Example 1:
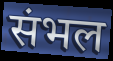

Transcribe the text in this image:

संभल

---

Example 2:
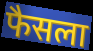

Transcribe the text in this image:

फैसला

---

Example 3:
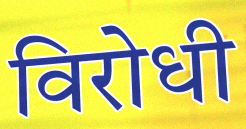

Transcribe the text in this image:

विरोधी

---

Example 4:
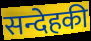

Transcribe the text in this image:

सन्देहकी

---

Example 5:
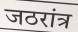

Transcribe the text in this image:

जठरांत्र